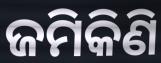
ଜମିକିଣି